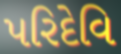
પરિદેવિ